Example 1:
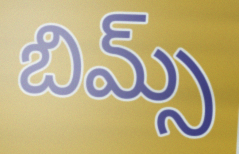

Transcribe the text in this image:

బిమ్స్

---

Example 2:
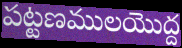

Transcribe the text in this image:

పట్టణములయొద్ద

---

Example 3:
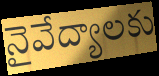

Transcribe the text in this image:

నైవేద్యాలకు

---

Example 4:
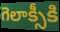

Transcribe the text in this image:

గెలాక్సీకి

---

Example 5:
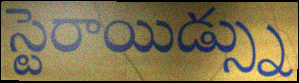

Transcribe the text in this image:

స్టెరాయిడ్స్ను